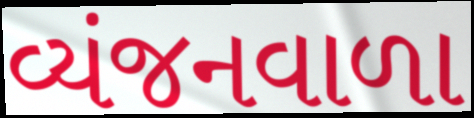
વ્યંજનવાળા